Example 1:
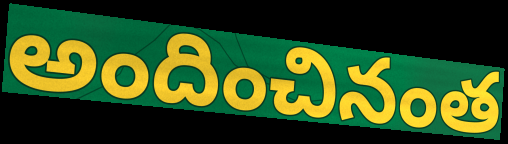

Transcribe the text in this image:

అందించినంత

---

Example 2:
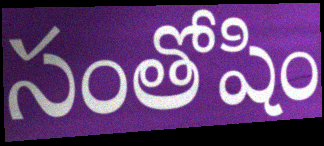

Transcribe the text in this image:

సంతోషిం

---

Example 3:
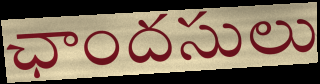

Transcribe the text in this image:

ఛాందసులు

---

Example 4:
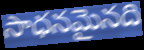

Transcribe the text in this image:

సాధనమైనది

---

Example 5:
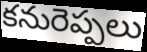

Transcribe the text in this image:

కనురెప్పలు